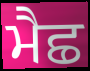
ਮੈਛ